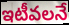
ఇటీవలనే